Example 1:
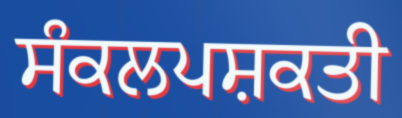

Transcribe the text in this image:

ਸੰਕਲਪਸ਼ਕਤੀ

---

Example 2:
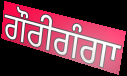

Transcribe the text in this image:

ਗੌਰੀਗੰਗਾ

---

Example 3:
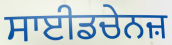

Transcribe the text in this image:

ਸਾਈਡਚੇਨਜ਼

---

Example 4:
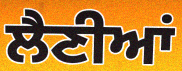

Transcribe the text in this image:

ਲੈਣੀਆਂ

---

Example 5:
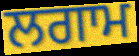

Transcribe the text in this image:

ਲਗਾਮ